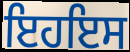
ਇਹਇਸ